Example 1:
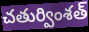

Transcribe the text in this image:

చతుర్వింశత్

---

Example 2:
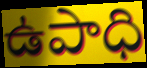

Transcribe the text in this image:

ఉపాధి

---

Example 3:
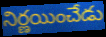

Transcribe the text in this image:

నిర్ణయించేడు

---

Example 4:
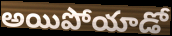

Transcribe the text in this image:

అయిపోయాడో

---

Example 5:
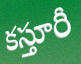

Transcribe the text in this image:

కస్తూరీ